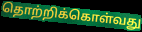
தொற்றிக்கொள்வது